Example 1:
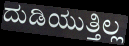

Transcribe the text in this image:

ದುಡಿಯುತ್ತಿಲ್ಲ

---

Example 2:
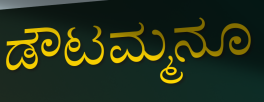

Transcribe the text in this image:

ಡೌಟಮ್ಮನೂ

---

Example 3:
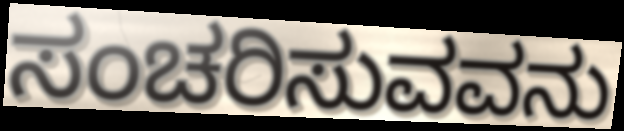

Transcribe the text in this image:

ಸಂಚರಿಸುವವನು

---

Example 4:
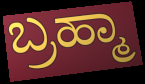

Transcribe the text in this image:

ಬ್ರಹ್ಮಾ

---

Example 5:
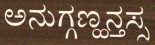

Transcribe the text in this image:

ಅನುಗ್ಗಣ್ಹನ್ತಸ್ಸ